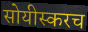
सोयीस्करच